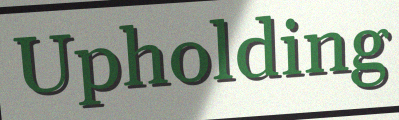
Upholding